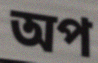
অপ